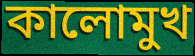
কালোমুখ